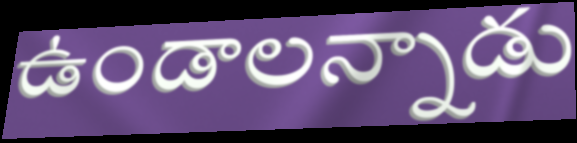
ఉండాలన్నాడు